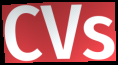
CVs